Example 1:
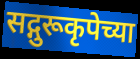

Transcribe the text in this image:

सद्गुरूकृपेच्या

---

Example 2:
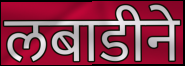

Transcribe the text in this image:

लबाडीने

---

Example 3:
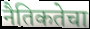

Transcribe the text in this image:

नैतिकतेचा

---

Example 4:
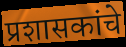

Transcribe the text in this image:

प्रशासकांचे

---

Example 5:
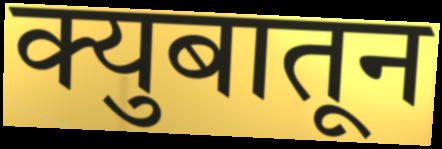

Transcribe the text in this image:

क्युबातून